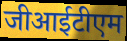
जीआईटीएम